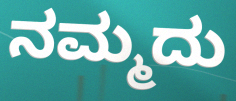
ನಮ್ಮದು